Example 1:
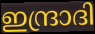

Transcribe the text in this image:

ഇന്ദ്രാദി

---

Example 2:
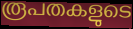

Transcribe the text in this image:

രൂപതകളുടെ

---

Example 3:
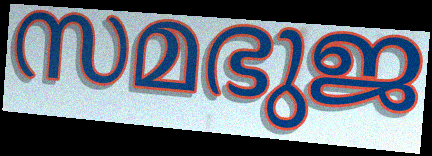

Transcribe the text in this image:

സമഭുജ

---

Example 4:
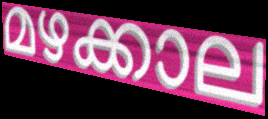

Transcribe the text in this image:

മഴക്കാല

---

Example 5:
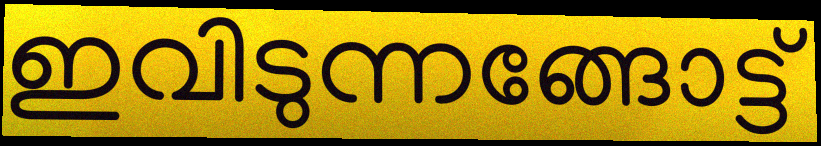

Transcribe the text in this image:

ഇവിടുന്നങ്ങോട്ട്